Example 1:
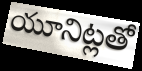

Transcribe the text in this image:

యూనిట్లతో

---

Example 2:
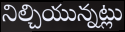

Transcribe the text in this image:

నిల్చియున్నట్లు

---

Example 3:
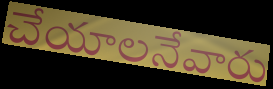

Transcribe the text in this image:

చేయాలనేవారు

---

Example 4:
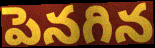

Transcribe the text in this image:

పెనగిన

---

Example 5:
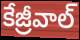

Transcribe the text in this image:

కేజ్రీవాల్